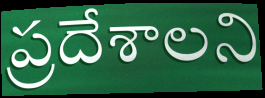
ప్రదేశాలని